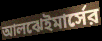
আলঝেইমার্সের